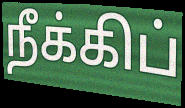
நீக்கிப்